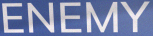
ENEMY